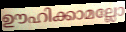
ഊഹിക്കാമല്ലോ